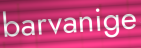
barvanige